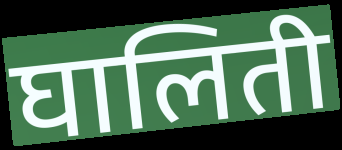
घालिती